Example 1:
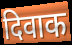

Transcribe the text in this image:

दिवाक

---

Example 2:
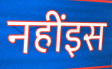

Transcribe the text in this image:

नहींइस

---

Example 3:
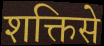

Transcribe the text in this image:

शक्तिसे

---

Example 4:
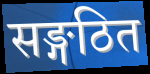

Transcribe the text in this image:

सङ्गठित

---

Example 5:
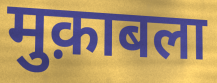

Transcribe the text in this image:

मुक़ाबला